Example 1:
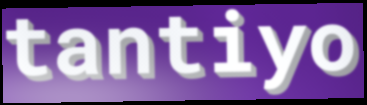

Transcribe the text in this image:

tantiyo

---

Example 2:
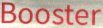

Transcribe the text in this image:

Booster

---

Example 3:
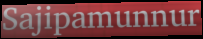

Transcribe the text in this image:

Sajipamunnur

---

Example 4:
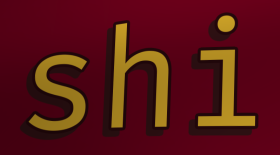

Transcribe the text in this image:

shi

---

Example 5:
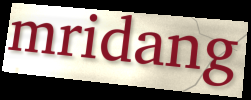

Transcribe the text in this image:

mridang